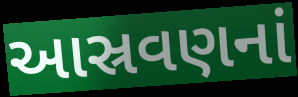
આસ્રવણનાં